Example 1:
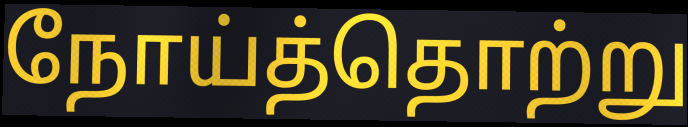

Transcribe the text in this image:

நோய்த்தொற்று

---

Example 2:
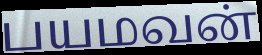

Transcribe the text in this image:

பயமவன்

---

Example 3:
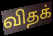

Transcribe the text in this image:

விதக்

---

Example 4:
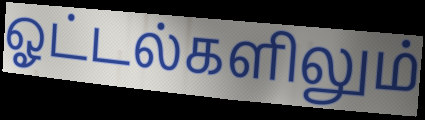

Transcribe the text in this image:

ஓட்டல்களிலும்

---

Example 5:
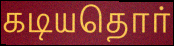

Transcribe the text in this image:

கடியதொர்